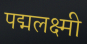
पद्मलक्ष्मी